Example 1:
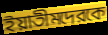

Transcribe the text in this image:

ইয়াতীমদেরকে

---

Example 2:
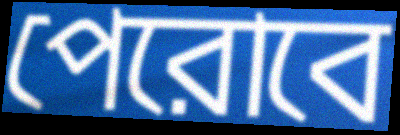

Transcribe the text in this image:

পেরোবে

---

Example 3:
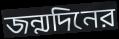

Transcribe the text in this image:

জন্মদিনের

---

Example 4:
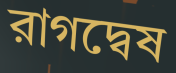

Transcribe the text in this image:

রাগদ্বেষ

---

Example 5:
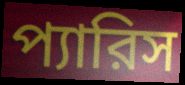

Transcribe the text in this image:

প্যারিস